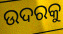
ଉଦରକୁ